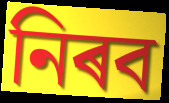
নিৰব